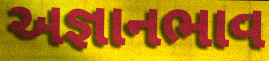
અજ્ઞાનભાવ